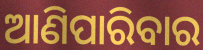
ଆଣିପାରିବାର